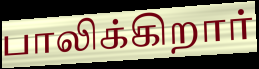
பாலிக்கிறார்